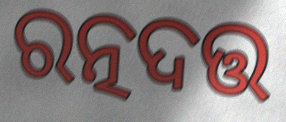
ରତ୍ନଦତ୍ତ